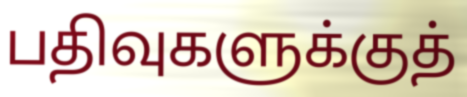
பதிவுகளுக்குத்